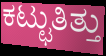
ಕಟ್ಟುತಿತ್ತು